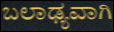
ಬಲಾಢ್ಯವಾಗಿ